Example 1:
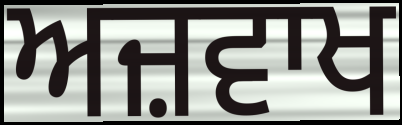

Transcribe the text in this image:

ਅਜ਼ਵਾਖ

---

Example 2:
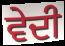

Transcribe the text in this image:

ਵੇਦੀ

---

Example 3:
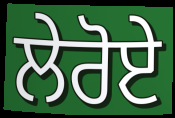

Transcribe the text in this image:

ਲੇਰੋਏ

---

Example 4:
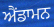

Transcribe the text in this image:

ਐਂਡਾਮਨ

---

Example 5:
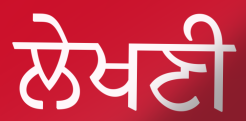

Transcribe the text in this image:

ਲੇਖਣੀ